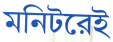
মনিটরেই